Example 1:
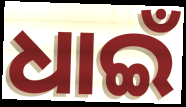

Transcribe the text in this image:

ଧାଇଁ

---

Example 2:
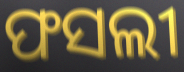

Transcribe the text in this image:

ଫସଲୀ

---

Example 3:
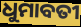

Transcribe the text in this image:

ଧୁମାବତୀ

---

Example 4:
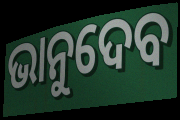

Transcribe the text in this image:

ଭାନୁଦେବ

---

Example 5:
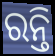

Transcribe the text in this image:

ରନ୍ତି